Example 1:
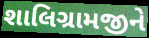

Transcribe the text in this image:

શાલિગ્રામજીને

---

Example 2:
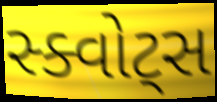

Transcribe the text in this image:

સ્ક્વોટ્સ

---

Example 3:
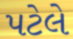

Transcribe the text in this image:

પટેલે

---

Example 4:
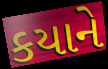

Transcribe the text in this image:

કયાને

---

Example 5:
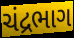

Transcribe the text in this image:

ચંદ્રભાગ